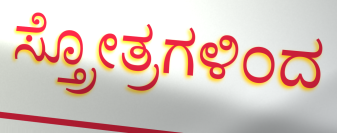
ಸ್ತ್ರೋತ್ರಗಳಿಂದ